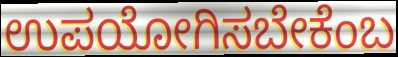
ಉಪಯೋಗಿಸಬೇಕೆಂಬ